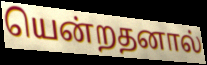
யென்றதனால்